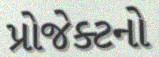
પ્રોજેક્ટનો